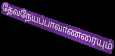
தேவநேயப்பாவாணரையும்